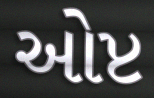
ઓપ્ટ